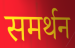
समर्थन